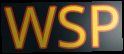
WSP